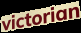
victorian